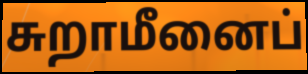
சுறாமீனைப்